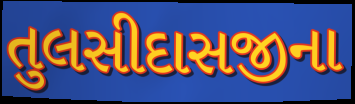
તુલસીદાસજીના